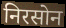
निरसोन